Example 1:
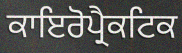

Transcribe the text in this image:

ਕਾਇਰੋਪ੍ਰੈਕਟਿਕ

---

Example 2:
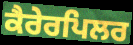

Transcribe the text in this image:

ਕੈਰੇਰਪਿਲਰ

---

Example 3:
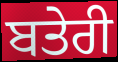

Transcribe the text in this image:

ਬਤੇਰੀ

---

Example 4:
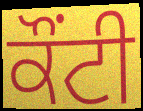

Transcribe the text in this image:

ਕੌਂਟੀ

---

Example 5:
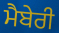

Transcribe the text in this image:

ਮੈਬੇਰੀ